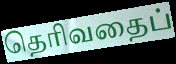
தெரிவதைப்